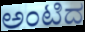
ಅಂಟಿದ